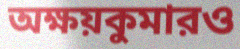
অক্ষয়কুমারও